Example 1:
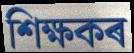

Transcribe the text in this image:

শিক্ষকৰ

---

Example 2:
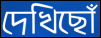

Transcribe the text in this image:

দেখিছোঁ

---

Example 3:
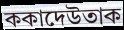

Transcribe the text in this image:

ককাদেউতাক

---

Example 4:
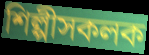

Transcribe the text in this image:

শিল্পীসকলক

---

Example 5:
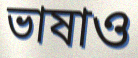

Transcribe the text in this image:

ভাষাও